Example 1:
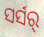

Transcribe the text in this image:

ସର୍ସର୍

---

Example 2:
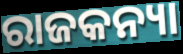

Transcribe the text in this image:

ରାଜକନ୍ୟା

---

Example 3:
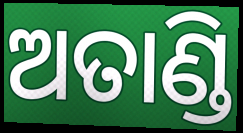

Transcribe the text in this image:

ଅତାଣ୍ଡି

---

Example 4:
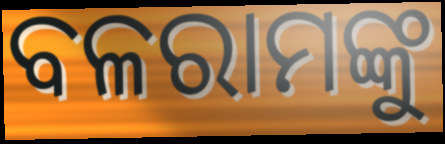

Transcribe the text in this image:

ବଳରାମଙ୍କୁ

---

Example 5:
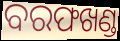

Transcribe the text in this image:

ବରଫଖଣ୍ଡ